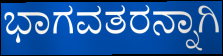
ಭಾಗವತರನ್ನಾಗಿ